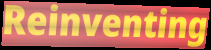
Reinventing